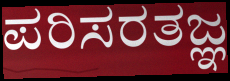
ಪರಿಸರತಜ್ಞ